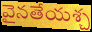
వైనతేయశ్చ